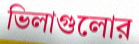
ভিলাগুলোর